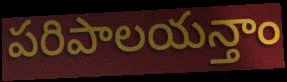
పరిపాలయన్తాం